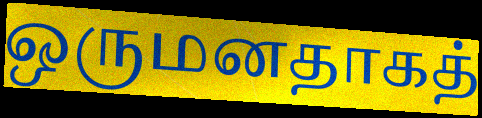
ஒருமனதாகத்